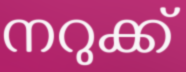
നറുക്ക്